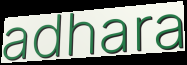
adhara